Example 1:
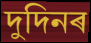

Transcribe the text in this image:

দুদিনৰ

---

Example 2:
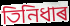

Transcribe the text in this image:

তিনিধাৰ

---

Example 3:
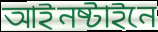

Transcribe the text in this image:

আইনষ্টাইনে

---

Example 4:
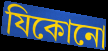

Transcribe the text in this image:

যিকোনো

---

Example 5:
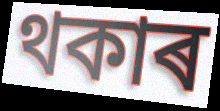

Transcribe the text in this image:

থকাৰ